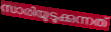
സാരിയുടുക്കുന്നത്